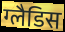
ग्लैडिस